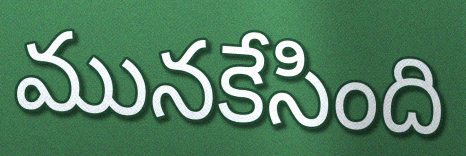
మునకేసింది